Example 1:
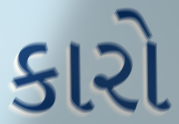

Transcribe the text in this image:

કારો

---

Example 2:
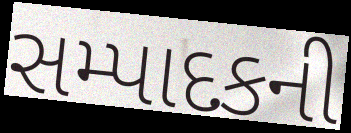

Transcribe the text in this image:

સમ્પાદકની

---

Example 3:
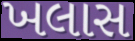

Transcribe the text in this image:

ખલાસ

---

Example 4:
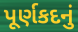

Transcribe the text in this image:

પૂર્ણકદનું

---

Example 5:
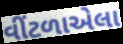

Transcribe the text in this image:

વીંટળાએલા